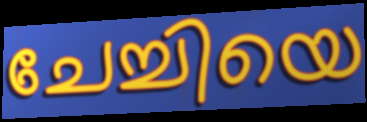
ചേച്ചിയെ